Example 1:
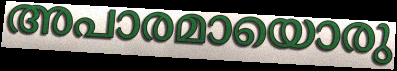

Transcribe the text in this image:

അപാരമായൊരു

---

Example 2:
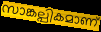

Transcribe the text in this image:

സാങ്കല്പികമാണ്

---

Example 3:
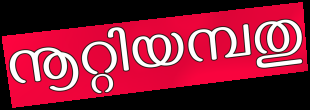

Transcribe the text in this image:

നൂറ്റിയമ്പതു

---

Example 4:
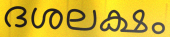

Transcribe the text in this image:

ദശലക്ഷം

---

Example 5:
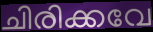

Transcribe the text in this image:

ചിരിക്കവേ